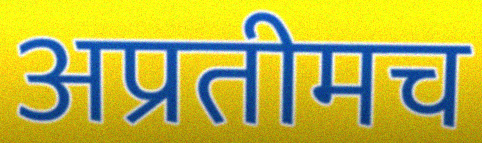
अप्रतीमच